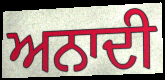
ਅਨਾਦੀ